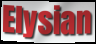
Elysian